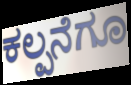
ಕಲ್ಪನೆಗೂ